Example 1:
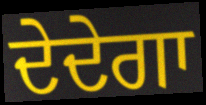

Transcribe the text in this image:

ਦੇਦੇਗਾ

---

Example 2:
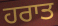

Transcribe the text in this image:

ਹਰਾਤ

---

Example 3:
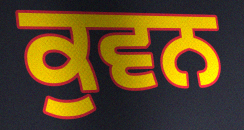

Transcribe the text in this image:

ਕੁਵਨ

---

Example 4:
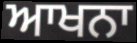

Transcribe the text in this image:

ਆਖਨਾ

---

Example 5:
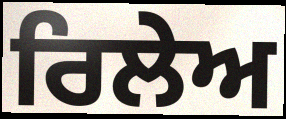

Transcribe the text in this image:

ਰਿਲੇਅ